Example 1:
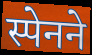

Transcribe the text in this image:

स्पेनने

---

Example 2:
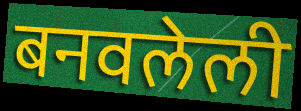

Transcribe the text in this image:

बनवलेली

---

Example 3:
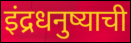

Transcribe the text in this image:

इंद्रधनुष्याची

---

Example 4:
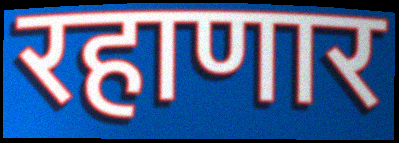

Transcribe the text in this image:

रहाणार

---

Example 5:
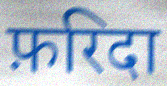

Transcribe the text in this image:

फ़रिदा